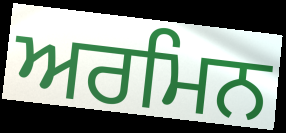
ਅਰਮਿਨ